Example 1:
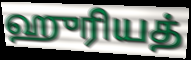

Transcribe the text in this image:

ஹுரியத்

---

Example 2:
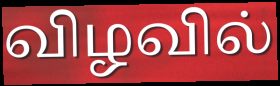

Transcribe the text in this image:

விழவில்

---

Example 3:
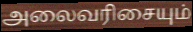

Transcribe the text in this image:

அலைவரிசையும்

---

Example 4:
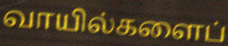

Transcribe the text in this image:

வாயில்களைப்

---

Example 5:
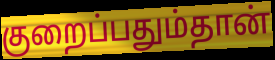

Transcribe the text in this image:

குறைப்பதும்தான்